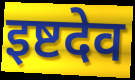
इष्टदेव